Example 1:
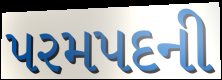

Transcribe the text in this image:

પરમપદની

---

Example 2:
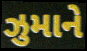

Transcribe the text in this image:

ઝુમાને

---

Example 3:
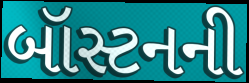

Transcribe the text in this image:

બૉસ્ટનની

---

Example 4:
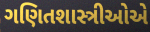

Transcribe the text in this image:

ગણિતશાસ્ત્રીઓએ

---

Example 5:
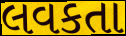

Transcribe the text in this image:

લવકતા